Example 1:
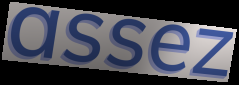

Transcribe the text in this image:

assez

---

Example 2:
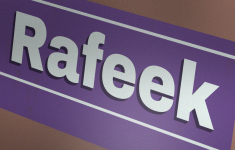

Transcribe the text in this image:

Rafeek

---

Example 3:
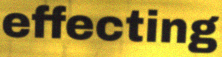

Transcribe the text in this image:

effecting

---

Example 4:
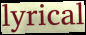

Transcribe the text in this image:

lyrical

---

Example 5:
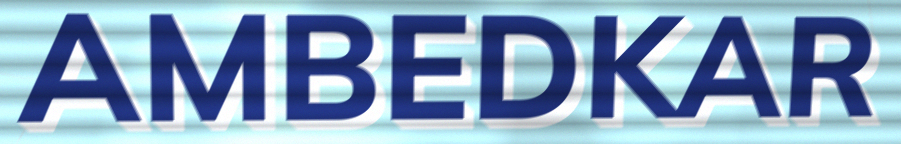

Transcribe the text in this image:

AMBEDKAR